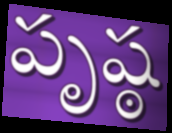
పృష్ఠ